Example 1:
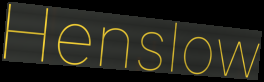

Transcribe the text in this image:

Henslow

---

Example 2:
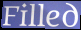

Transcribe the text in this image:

Filled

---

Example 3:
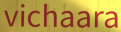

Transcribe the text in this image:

vichaara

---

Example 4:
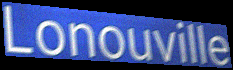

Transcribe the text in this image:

Lonouville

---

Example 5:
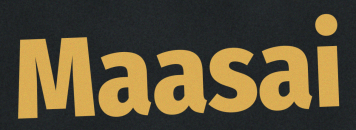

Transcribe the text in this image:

Maasai